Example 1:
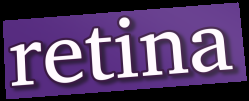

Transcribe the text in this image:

retina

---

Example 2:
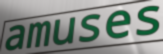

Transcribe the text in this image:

amuses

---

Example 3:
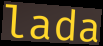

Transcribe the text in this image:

lada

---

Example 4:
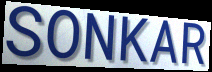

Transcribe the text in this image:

SONKAR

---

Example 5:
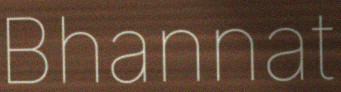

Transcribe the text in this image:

Bhannat